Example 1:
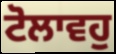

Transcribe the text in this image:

ਟੋਲਾਵਹੁ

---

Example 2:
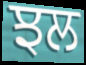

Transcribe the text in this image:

ਝਲ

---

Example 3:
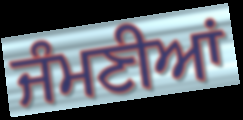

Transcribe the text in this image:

ਜੰਮਣੀਆਂ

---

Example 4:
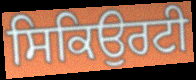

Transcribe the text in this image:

ਸਿਕਿਉਰਟੀ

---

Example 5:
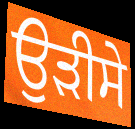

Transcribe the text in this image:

ਉੜੀਸੇ